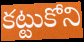
కట్టుకోని